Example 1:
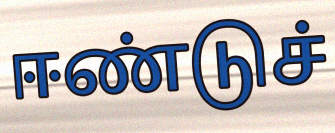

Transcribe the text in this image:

ஈண்டுச்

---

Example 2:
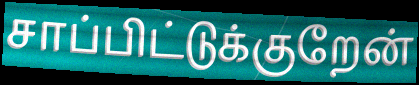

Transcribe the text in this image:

சாப்பிட்டுக்குறேன்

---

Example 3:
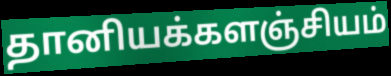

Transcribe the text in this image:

தானியக்களஞ்சியம்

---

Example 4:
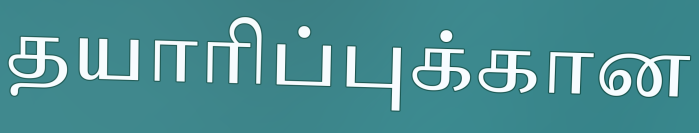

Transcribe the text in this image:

தயாரிப்புக்கான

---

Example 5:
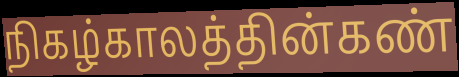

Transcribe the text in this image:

நிகழ்காலத்தின்கண்